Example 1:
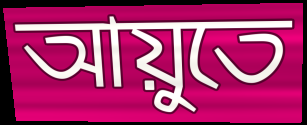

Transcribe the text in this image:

আয়ুতে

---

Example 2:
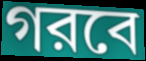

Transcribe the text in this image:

গরবে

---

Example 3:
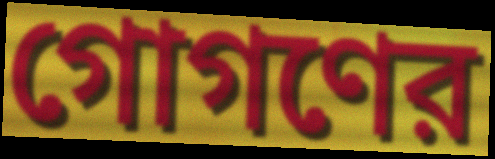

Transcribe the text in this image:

গোগণের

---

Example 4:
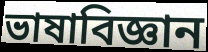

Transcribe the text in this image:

ভাষাবিজ্ঞান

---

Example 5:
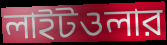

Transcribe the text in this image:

লাইটওলার